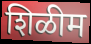
शिळीम